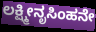
ಲಕ್ಷ್ಮೀನೃಸಿಂಹನೇ